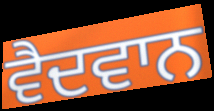
ਵੈਦਵਾਨ